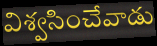
విశ్వసించేవాడు